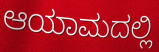
ಆಯಾಮದಲ್ಲಿ